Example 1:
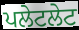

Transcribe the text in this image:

ਪਲੇਟਲੇਟ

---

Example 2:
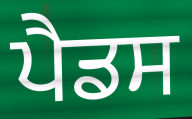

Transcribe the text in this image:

ਪੈਡਸ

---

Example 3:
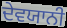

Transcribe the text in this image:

ਦੇਵਯਾਨੀ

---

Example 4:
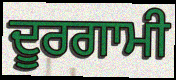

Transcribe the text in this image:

ਦੂਰਗਾਮੀ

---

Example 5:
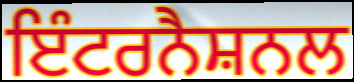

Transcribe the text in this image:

ਇੰਟਰਨੈਸ਼ਨਲ